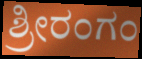
ಶ್ರೀರಂಗಂ